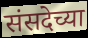
संसदेच्या